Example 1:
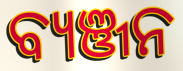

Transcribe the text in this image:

ବ୍ୟଞ୍ଜନ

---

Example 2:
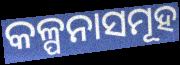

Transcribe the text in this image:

କଳ୍ପନାସମୂହ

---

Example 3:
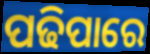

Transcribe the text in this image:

ପଢିପାରେ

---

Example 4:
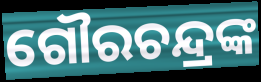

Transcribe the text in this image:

ଗୌରଚନ୍ଦ୍ରଙ୍କ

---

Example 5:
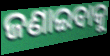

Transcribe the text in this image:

ଜଣାଇବାକୁ